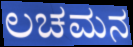
ಲಚಮನ